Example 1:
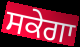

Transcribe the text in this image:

ਸਕੇਗਾ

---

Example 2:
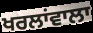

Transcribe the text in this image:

ਖਰਲਾਂਵਾਲਾ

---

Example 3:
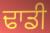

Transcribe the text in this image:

ਢਾਡੀ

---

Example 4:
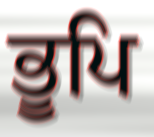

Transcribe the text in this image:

ਭੂਪਿ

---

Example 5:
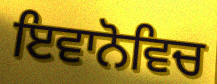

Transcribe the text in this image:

ਇਵਾਨੋਵਿਚ